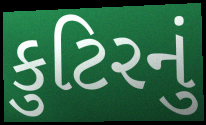
કુટિરનું